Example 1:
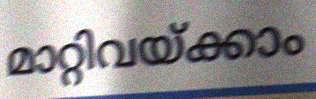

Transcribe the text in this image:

മാറ്റിവയ്ക്കാം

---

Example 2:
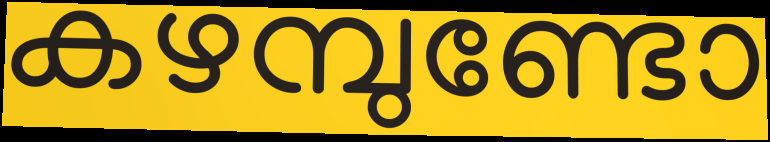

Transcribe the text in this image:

കഴമ്പുണ്ടോ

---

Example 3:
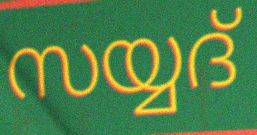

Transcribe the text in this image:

സയ്യദ്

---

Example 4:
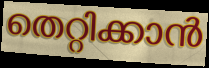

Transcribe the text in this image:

തെറ്റിക്കാൻ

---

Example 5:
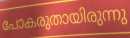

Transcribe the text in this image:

പോകരുതായിരുന്നു